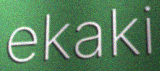
ekaki